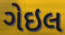
ગેઇલ